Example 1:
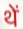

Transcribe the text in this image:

थें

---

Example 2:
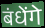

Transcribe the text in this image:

बंधेंगे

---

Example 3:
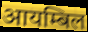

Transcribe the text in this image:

आयम्बिल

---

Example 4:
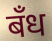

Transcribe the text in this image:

बँध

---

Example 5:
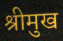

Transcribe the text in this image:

श्रीमुख